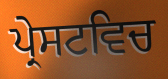
ਪ੍ਰੇਸਟਵਿਚ